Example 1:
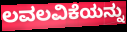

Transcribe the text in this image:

ಲವಲವಿಕೆಯನ್ನು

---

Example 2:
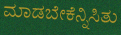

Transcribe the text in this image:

ಮಾಡಬೇಕೆನ್ನಿಸಿತು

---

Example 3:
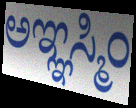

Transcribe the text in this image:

ಅಞ್ಞಸ್ಮಿಂ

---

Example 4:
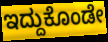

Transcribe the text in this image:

ಇದ್ದುಕೊಂಡೇ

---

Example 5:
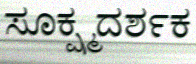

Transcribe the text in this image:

ಸೂಕ್ಷ್ಮದರ್ಶಕ